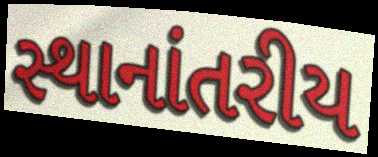
સ્થાનાંતરીય